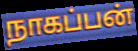
நாகப்பன்